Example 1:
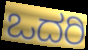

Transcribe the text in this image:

ಒದರಿ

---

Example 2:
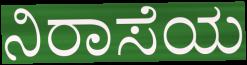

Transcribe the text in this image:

ನಿರಾಸೆಯ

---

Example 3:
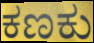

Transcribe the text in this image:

ಕಣಕು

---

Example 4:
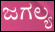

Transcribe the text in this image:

ಜಗಲ್ಯ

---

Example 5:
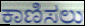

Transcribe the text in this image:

ಕಾಣಿಸಲು